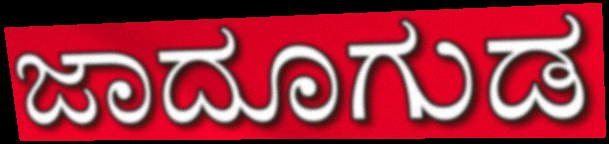
ಜಾದೂಗುಡ